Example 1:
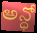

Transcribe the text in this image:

అన్ధో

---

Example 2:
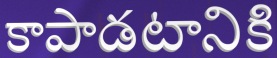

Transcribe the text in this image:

కాపాడటానికి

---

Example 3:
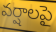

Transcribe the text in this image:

వర్షాలపై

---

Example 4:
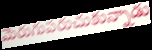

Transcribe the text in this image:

మెరుగుపరుచుకున్నాడు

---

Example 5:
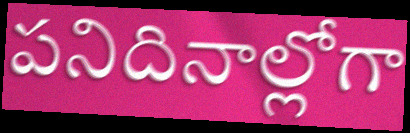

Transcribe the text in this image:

పనిదినాల్లోగా